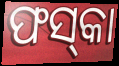
ଫସ୍‌କା